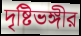
দৃষ্টিভঙ্গীর